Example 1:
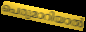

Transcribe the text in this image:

പെരുമാറിയാൽ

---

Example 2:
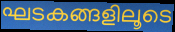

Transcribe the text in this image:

ഘടകങ്ങളിലൂടെ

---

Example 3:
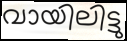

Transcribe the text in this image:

വായിലിട്ടു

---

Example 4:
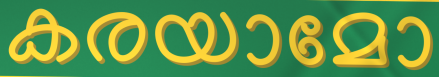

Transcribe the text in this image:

കരയാമോ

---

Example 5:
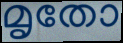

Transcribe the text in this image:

മൃതോ